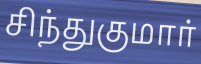
சிந்துகுமார்